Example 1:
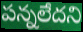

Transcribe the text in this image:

పన్నలేదని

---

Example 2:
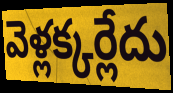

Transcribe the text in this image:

వెళ్లక్కర్లేదు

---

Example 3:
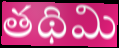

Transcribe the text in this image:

తథిమి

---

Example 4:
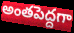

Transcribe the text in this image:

అంతపెద్దగా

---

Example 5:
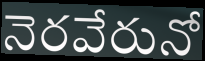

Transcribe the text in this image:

నెరవేరునో